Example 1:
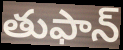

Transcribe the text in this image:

తుఫాన్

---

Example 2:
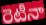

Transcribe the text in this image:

రెటీనా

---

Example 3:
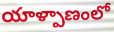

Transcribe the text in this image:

యాళ్పాణంలో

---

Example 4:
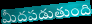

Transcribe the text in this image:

మీదపడుతుంది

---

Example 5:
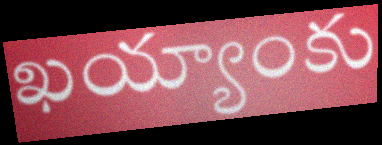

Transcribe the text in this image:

ఖయ్యాంకు